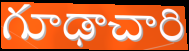
గూఢాచారి